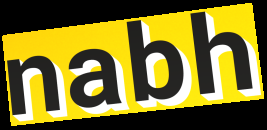
nabh